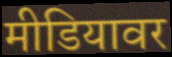
मीडियावर